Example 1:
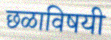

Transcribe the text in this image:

छळाविषयी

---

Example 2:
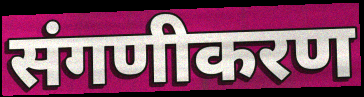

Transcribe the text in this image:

संगणीकरण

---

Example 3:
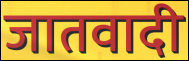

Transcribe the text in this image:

जातवादी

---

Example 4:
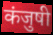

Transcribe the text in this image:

कंजुषी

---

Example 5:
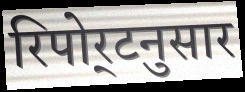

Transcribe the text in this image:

रिपोर्टनुसार